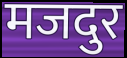
मजदुर